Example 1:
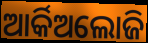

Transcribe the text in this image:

ଆର୍କିଅଲୋଜି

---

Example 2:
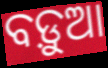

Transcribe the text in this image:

ବଡ଼ୁଆ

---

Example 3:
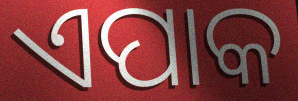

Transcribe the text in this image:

ଏପାକ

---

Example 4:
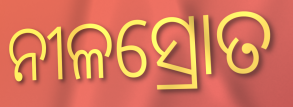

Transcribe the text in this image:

ନୀଳସ୍ରୋତ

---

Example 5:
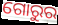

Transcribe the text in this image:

ଗୋରୁର